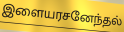
இளையரசனேந்தல்